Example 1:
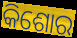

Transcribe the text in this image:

କିଶୋର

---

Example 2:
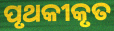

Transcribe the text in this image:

ପୃଥକୀକୃତ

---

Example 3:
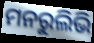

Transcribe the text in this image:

ମନରୁଲିଭି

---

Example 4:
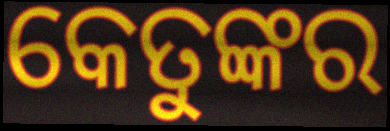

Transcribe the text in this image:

କେତୁଙ୍କର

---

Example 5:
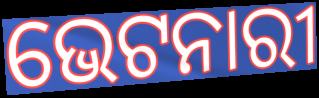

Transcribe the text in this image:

ଭେଟନାରୀ